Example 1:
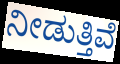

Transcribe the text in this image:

ನೀಡುತ್ತಿವೆ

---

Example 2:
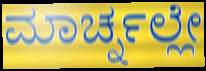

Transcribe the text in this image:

ಮಾರ್ಚ್ನಲ್ಲೇ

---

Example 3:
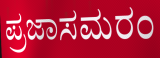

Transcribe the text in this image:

ಪ್ರಜಾಸಮರಂ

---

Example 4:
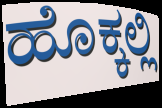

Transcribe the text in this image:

ಹೊಕ್ಕಲ್ಲಿ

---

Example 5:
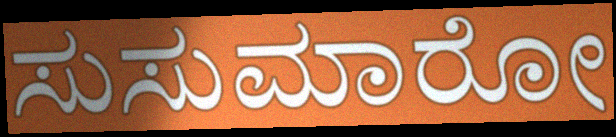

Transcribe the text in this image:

ಸುಸುಮಾರೋ